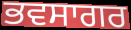
ਭਵਸਾਗਰ